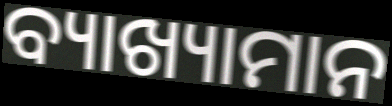
ବ୍ୟାଖ୍ୟାମାନ